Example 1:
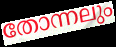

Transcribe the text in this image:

തോന്നലും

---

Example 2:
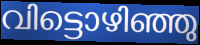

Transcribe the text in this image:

വിട്ടൊഴിഞ്ഞു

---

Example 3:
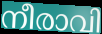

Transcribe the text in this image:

നീരാവി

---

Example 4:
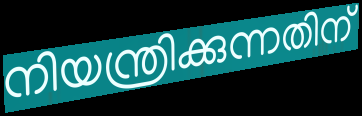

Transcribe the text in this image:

നിയന്ത്രിക്കുന്നതിന്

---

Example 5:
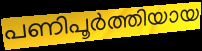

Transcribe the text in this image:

പണിപൂർത്തിയായ